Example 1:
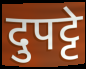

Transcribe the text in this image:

दुपट्टे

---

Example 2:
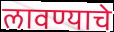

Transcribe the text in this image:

लावण्याचे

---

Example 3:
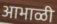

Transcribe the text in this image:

आभाळी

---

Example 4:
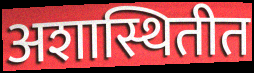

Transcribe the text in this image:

अशास्थितीत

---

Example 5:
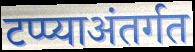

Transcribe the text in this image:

टप्प्याअंतर्गत